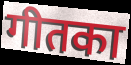
गीतका